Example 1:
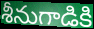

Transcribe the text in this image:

శీనుగాడికి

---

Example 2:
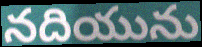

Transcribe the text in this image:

నదియును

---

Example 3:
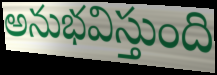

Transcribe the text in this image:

అనుభవిస్తుంది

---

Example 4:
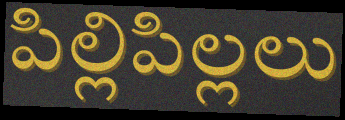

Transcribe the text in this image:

పిల్లిపిల్లలు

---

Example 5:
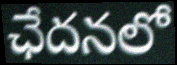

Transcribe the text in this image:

ఛేదనలో